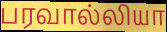
பரவால்லியா